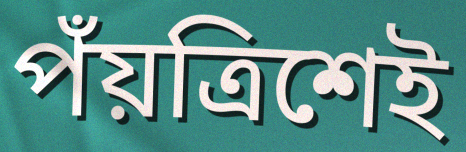
পঁয়ত্রিশেই